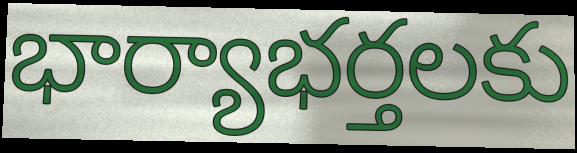
భార్యాభర్తలకు